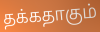
தக்கதாகும்